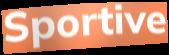
Sportive